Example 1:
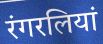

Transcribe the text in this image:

रंगरलियां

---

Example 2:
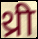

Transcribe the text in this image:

थ्री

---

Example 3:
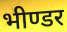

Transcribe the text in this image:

भीण्डर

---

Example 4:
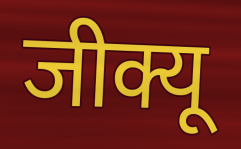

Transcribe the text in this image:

जीक्यू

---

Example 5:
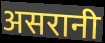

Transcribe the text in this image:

असरानी